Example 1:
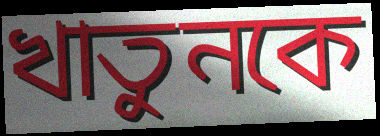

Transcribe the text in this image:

খাতুনকে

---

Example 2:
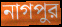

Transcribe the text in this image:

নাগপুর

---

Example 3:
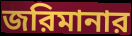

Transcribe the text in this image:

জরিমানার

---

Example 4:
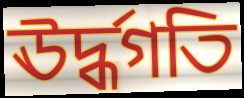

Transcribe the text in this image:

ঊর্দ্ধগতি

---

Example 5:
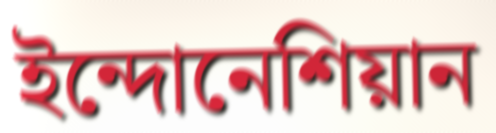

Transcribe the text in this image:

ইন্দোনেশিয়ান